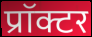
प्रॉक्टर